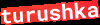
turushka